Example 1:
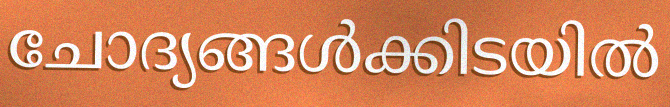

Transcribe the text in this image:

ചോദ്യങ്ങൾക്കിടയിൽ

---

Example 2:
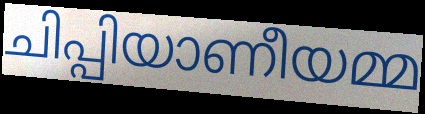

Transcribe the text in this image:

ചിപ്പിയാണീയമ്മ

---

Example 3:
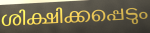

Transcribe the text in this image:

ശിക്ഷിക്കപ്പെടും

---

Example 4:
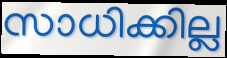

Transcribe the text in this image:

സാധിക്കില്ല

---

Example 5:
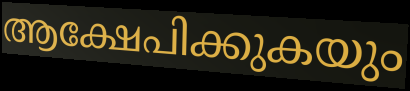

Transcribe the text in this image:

ആക്ഷേപിക്കുകയും